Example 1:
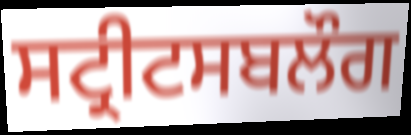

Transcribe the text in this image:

ਸਟ੍ਰੀਟਸਬਲੌਗ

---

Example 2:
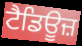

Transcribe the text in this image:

ਟੈਡਿਊਜ਼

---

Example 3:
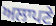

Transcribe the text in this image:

ਅਲਾਪਣੇ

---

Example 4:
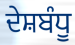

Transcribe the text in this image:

ਦੇਸ਼ਬੰਧੂ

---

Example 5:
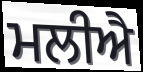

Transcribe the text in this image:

ਮਲੀਐ